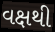
વક્ષથી